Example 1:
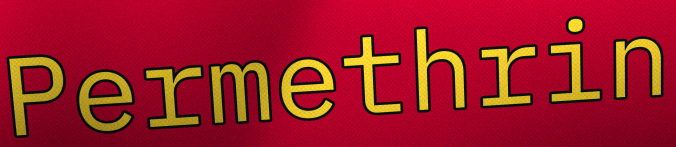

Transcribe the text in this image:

Permethrin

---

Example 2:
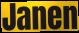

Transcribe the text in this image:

Janen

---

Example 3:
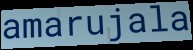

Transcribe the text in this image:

amarujala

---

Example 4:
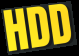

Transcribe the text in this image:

HDD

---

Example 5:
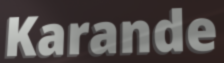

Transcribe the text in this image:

Karande